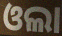
ଓଲା